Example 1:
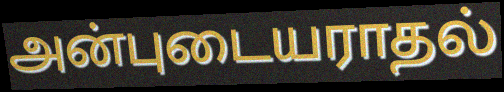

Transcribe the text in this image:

அன்புடையராதல்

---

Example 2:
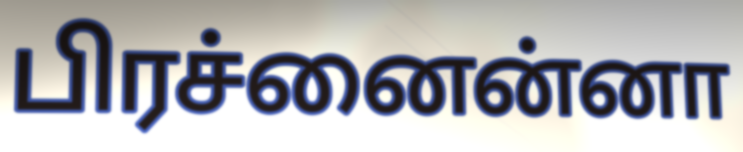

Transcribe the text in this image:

பிரச்னைன்னா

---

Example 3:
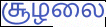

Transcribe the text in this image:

சூழலை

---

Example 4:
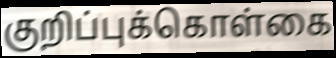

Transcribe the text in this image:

குறிப்புக்கொள்கை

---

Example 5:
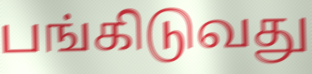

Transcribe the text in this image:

பங்கிடுவது